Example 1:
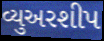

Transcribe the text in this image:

વ્યુઅરશીપ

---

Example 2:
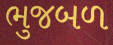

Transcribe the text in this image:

ભુજબળ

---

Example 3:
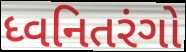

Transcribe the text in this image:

ધ્વનિતરંગો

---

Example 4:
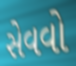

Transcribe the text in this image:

સેવવો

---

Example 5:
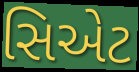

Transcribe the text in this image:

સિએટ